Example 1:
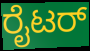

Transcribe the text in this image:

ರೈಟರ್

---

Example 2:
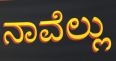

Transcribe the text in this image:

ನಾವೆಲ್ಲು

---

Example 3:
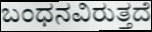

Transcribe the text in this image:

ಬಂಧನವಿರುತ್ತದೆ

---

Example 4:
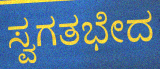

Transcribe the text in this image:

ಸ್ವಗತಭೇದ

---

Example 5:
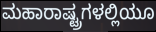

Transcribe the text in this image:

ಮಹಾರಾಷ್ಟ್ರಗಳಲ್ಲಿಯೂ